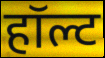
हॉल्ट